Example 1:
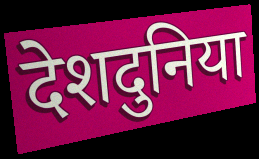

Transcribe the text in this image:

देशदुनिया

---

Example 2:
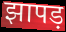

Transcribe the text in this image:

झापड़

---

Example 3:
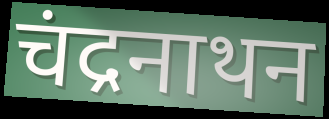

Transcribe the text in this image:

चंद्रनाथन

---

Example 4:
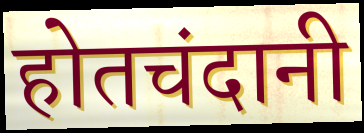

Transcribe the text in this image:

होतचंदानी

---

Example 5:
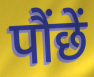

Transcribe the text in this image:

पौंछें